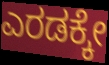
ಎರಡಕ್ಕೇ